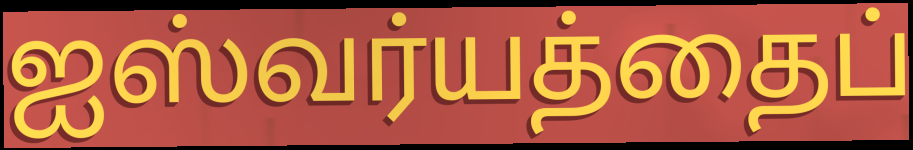
ஐஸ்வர்யத்தைப்